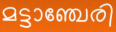
മട്ടാഞ്ചേരി